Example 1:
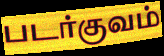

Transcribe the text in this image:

படர்குவம்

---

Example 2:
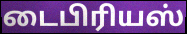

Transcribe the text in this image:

டைபிரியஸ்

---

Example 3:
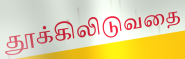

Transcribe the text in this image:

தூக்கிலிடுவதை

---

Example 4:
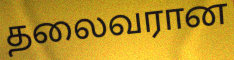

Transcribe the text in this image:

தலைவரான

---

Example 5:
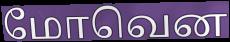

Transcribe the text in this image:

மோவென